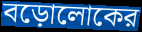
বড়োলোকের